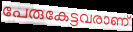
പേരുകേട്ടവരാണ്